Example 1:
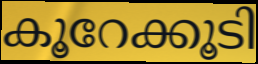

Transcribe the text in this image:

കൂറേക്കൂടി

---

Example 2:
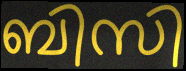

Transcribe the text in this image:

ബിസി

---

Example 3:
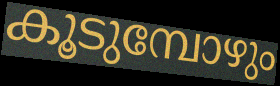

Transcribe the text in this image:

കൂടുമ്പോഴും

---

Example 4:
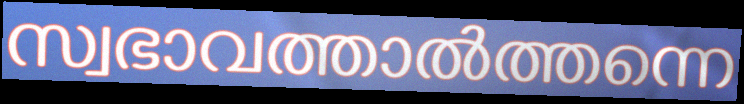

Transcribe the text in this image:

സ്വഭാവത്താൽത്തന്നെ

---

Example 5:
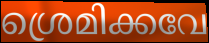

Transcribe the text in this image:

ശ്രെമിക്കവേ